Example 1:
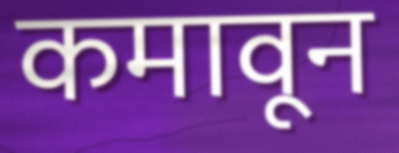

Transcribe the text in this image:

कमावून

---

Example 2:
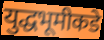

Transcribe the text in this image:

युद्धभूमीकडे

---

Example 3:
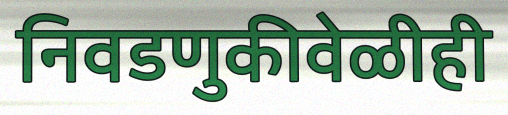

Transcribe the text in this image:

निवडणुकीवेळीही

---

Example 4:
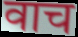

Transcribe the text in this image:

वाच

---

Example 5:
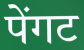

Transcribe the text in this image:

पेंगट